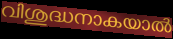
വിശുദ്ധനാകയാൽ